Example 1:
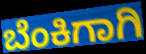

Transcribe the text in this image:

ಬೆಂಕಿಗಾಗಿ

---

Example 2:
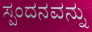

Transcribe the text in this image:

ಸ್ಪಂದನವನ್ನು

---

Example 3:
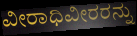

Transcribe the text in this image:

ವೀರಾಧಿವೀರರನ್ನು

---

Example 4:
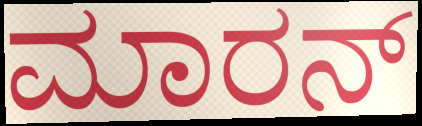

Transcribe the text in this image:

ಮಾರನ್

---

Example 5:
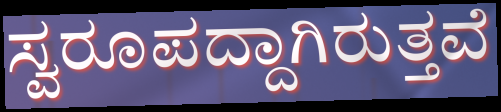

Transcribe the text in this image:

ಸ್ವರೂಪದ್ದಾಗಿರುತ್ತವೆ